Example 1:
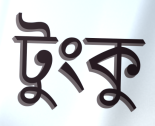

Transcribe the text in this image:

টুংকু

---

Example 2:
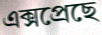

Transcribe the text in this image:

এক্সপ্ৰেছে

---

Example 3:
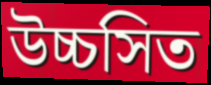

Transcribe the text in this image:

উচ্চসিত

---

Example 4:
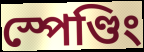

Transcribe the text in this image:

স্পেণ্ডিং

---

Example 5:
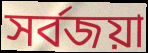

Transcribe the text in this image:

সৰ্বজয়া